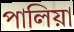
পালিয়া